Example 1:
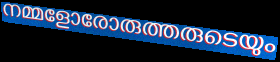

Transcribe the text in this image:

നമ്മളോരോരുത്തരുടെയും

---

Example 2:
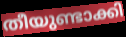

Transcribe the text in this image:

തീയുണ്ടാക്കി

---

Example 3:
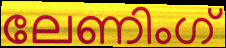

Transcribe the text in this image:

ലേണിംഗ്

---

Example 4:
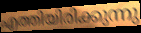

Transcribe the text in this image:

എത്തിയിരിക്കുന്നു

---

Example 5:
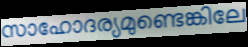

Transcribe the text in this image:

സാഹോദര്യമുണ്ടെങ്കിലേ